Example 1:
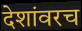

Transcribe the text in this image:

देशांवरच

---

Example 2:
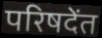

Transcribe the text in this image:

परिषदेंत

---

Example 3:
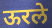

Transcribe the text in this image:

ऊरले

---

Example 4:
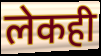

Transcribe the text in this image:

लेकही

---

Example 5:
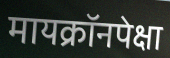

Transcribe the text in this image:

मायक्रॉनपेक्षा